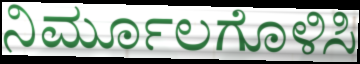
ನಿರ್ಮೂಲಗೊಳಿಸಿ